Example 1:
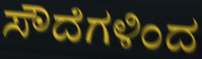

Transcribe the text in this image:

ಸೌದೆಗಳಿಂದ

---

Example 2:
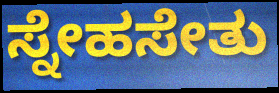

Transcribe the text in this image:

ಸ್ನೇಹಸೇತು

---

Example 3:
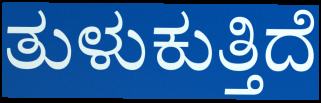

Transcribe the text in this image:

ತುಳುಕುತ್ತಿದೆ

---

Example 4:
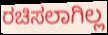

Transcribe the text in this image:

ರಚಿಸಲಾಗಿಲ್ಲ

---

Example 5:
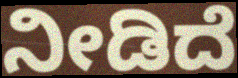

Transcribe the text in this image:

ನೀಡಿದೆ